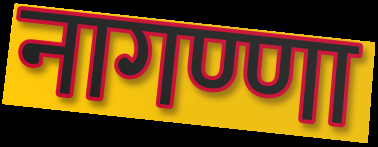
नागण्णा